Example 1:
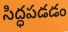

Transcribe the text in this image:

సిద్ధపడడం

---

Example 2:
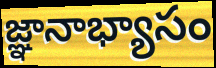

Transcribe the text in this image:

జ్ఞానాభ్యాసం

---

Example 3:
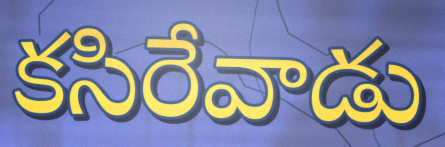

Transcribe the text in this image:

కసిరేవాడు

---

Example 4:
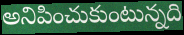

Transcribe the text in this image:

అనిపించుకుంటున్నది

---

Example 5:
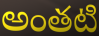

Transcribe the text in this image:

అంతటి